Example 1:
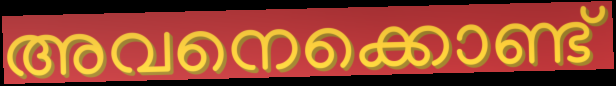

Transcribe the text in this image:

അവനെക്കൊണ്ട്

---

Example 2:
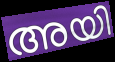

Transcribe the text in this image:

അയി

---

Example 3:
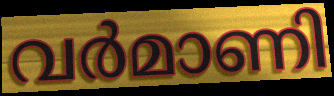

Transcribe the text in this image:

വർമാണി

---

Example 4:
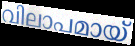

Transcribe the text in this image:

വിലാപമായ്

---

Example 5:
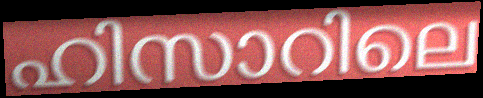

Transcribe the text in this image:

ഹിസാറിലെ